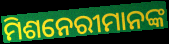
ମିଶନେରୀମାନଙ୍କ